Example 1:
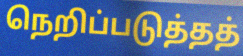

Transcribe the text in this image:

நெறிப்படுத்தத்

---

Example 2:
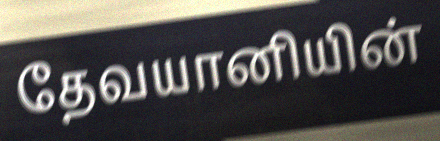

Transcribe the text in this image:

தேவயானியின்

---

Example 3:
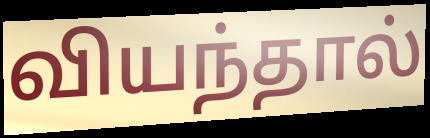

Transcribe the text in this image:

வியந்தால்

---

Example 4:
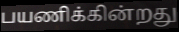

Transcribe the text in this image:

பயணிக்கின்றது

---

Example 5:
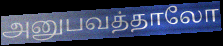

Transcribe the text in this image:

அனுபவத்தாலோ